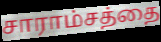
சாராம்சத்தை